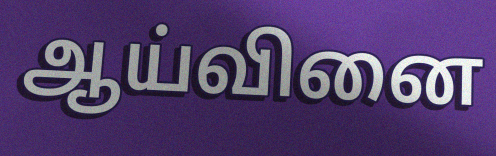
ஆய்வினை